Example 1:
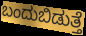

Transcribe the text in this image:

ಬಂದುಬಿಡುತ್ತೆ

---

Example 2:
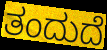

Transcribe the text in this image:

ತಂದುದೆ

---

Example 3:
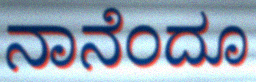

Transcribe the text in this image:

ನಾನೆಂದೂ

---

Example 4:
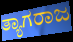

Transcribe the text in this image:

ತ್ಯಾಗರಾಜ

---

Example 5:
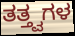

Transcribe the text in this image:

ತತ್ತ್ವಗಳ